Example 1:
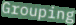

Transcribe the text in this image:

Grouping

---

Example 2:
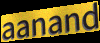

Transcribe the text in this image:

aanand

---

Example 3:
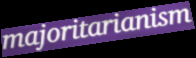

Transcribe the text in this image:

majoritarianism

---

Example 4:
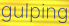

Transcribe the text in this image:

gulping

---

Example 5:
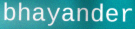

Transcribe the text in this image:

bhayander